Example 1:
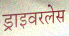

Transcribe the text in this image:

ड्राइवरलेस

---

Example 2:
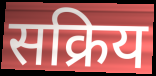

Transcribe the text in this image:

सक्रिय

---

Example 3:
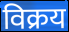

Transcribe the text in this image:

विक्रय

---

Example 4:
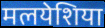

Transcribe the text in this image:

मलयेशिया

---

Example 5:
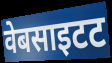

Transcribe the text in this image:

वेबसाइटट